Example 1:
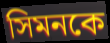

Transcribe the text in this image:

সিমনকে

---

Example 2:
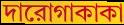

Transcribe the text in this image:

দারোগাকাকা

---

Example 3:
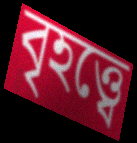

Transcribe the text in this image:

বৃহত্ত্বে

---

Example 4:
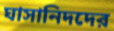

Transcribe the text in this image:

ঘাসানিদদের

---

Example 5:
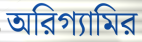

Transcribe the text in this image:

অরিগ্যামির